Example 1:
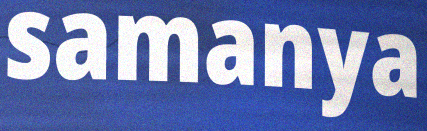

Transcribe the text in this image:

samanya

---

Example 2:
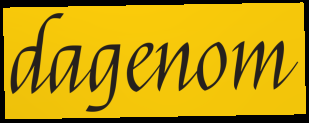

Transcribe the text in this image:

dagenom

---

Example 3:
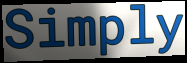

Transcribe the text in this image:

Simply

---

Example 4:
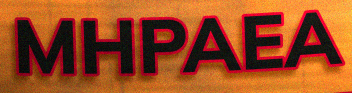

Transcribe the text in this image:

MHPAEA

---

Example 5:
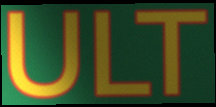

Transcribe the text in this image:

ULT